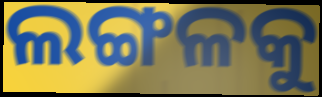
ଲଙ୍ଗଳକୁ